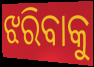
ଝରିବାକୁ